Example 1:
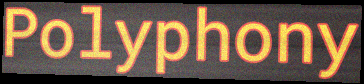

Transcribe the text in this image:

Polyphony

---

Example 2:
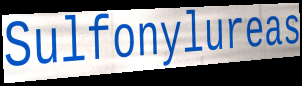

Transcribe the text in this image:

Sulfonylureas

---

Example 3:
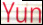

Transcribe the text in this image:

Yun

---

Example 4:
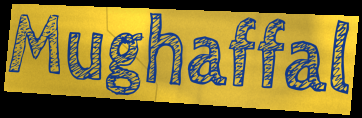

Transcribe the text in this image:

Mughaffal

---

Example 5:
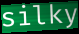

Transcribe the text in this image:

silky